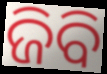
ଜିବି